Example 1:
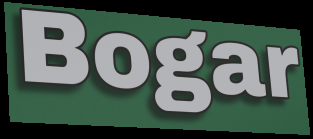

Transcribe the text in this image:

Bogar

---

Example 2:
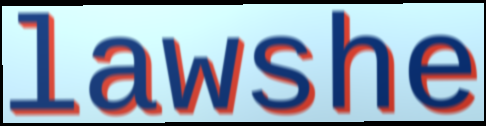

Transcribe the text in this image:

lawshe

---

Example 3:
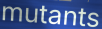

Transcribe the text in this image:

mutants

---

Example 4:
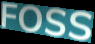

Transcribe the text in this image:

FOSS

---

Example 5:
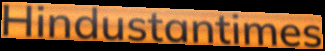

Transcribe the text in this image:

Hindustantimes